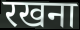
रखना